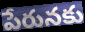
పేరునకు